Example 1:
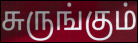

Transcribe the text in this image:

சுருங்கும்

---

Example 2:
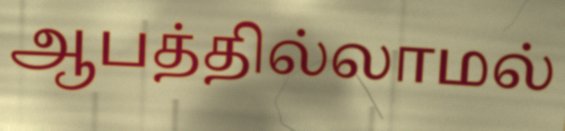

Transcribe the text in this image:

ஆபத்தில்லாமல்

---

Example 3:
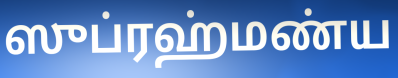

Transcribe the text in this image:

ஸுப்ரஹ்மண்ய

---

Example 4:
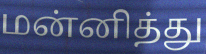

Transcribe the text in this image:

மன்னித்து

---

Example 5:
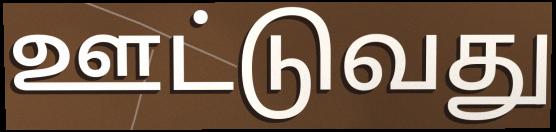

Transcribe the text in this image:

ஊட்டுவது